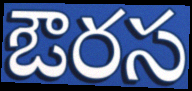
ఔరస